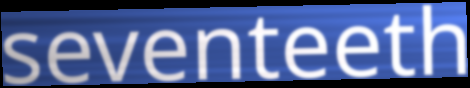
seventeeth